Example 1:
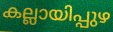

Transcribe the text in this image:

കല്ലായിപ്പുഴ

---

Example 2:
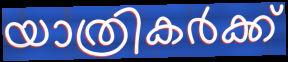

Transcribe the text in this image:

യാത്രികർക്ക്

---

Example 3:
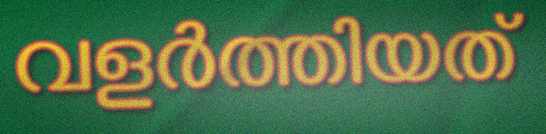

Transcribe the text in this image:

വളർത്തിയത്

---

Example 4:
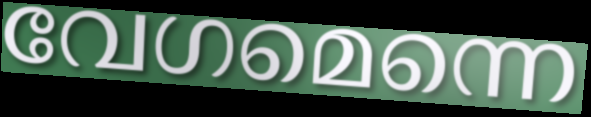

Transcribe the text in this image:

വേഗമെന്നെ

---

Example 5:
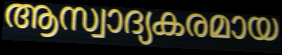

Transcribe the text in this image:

ആസ്വാദ്യകരമായ